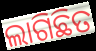
ଲାଗିଛିତ